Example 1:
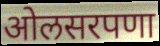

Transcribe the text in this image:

ओलसरपणा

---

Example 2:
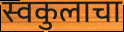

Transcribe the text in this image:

स्वकुलाचा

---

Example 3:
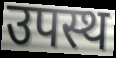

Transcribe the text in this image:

उपस्थ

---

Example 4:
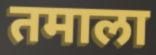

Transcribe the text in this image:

तमाला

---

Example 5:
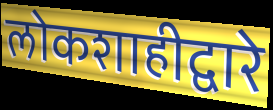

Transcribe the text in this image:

लोकशाहीद्वारे